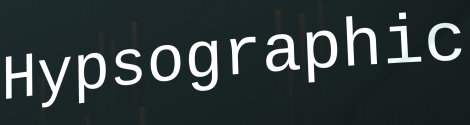
Hypsographic